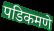
पडिकमणे